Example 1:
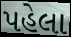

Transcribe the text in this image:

પહેલા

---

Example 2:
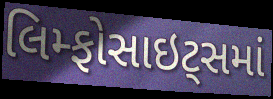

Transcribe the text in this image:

લિમ્ફોસાઇટ્સમાં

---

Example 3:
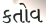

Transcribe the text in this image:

કતોવ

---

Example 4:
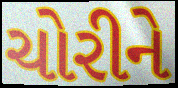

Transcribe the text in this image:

ચોરીને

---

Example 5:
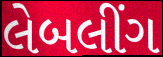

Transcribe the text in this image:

લેબલીંગ